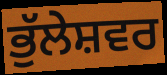
ਭੁੱਲੇਸ਼ਵਰ